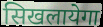
सिखलायेगा